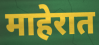
माहेरात